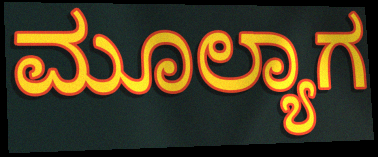
ಮೂಲ್ಯಾಗ